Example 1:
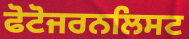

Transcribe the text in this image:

ਫੋਟੋਜਰਨਲਿਸਟ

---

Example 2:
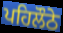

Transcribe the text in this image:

ਪਹਿਲੌਠੇ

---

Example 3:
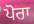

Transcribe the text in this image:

ਪੋਰਾ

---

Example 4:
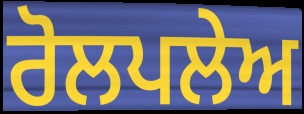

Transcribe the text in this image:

ਰੋਲਪਲੇਅ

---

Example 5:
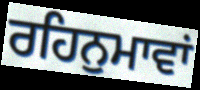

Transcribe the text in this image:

ਰਹਿਨੁਮਾਵਾਂ